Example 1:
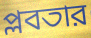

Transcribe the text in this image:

প্লবতার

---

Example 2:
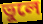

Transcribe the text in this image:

ভুলে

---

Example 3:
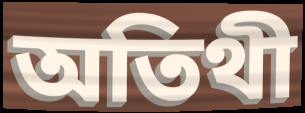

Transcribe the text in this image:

অতিথী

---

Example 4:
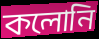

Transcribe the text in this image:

কলোনি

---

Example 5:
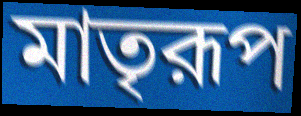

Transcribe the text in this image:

মাতৃরূপ